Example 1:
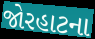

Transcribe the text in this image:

જોરહાટના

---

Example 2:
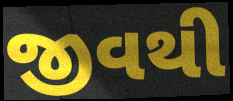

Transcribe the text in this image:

જીવથી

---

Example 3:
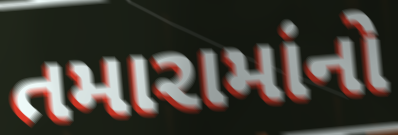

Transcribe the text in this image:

તમારામાંનો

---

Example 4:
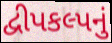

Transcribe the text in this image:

દ્વીપકલ્પનું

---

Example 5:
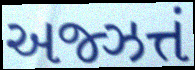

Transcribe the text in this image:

અજ્ઝત્તં